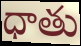
ధాతు